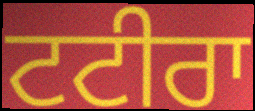
ਟਟੀਰਾ